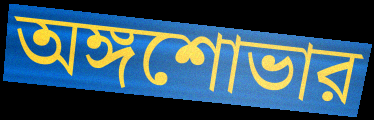
অঙ্গশোভার